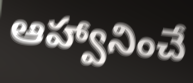
ఆహ్వానించే